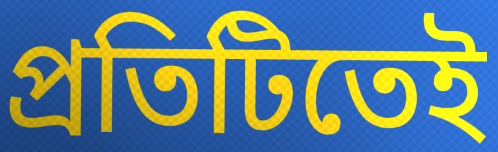
প্রতিটিতেই